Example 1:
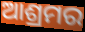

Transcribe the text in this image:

ଆଶ୍ରମର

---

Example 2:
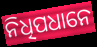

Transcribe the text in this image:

ନିଧିପଧାନେ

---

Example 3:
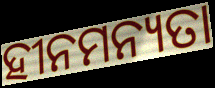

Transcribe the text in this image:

ହୀନମନ୍ୟତା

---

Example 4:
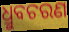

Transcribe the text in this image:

ଧ୍ରୁବଚରଣ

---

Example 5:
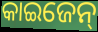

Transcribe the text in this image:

କାଇଜେନ୍